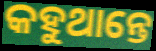
କହୁଥାନ୍ତେ